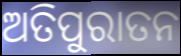
ଅତିପୁରାତନ